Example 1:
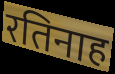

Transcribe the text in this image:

रतिनाह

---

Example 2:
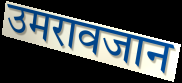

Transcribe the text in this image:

उमरावजान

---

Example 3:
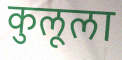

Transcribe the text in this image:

कुलूला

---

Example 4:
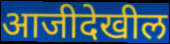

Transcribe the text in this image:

आजीदेखील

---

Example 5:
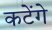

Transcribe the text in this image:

कटेंगे